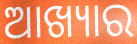
ଆଖ୍ୟାର